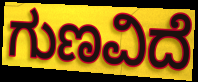
ಗುಣವಿದೆ